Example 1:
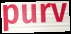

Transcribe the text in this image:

purv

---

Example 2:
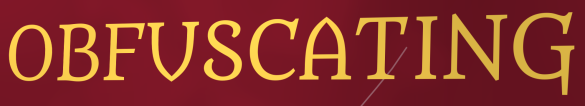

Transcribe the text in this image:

OBFUSCATING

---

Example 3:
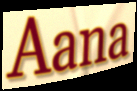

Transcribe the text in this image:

Aana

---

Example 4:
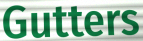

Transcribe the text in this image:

Gutters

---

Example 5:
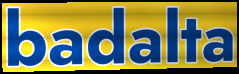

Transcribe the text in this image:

badalta